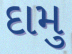
દામુ